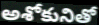
అశోకునితో